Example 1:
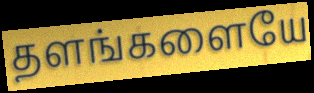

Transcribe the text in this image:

தளங்களையே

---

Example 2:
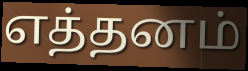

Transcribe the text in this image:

எத்தனம்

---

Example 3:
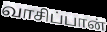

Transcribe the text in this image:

வாசிப்பான்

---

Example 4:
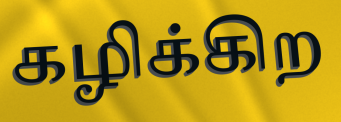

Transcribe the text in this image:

கழிக்கிற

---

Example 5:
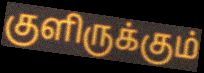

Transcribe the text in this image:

குளிருக்கும்